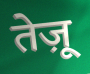
तेज़ू